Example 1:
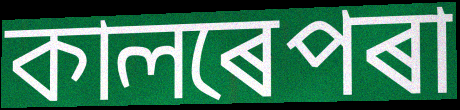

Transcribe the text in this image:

কালৰেপৰা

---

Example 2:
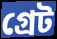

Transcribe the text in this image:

গ্ৰেট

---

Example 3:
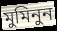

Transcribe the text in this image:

মুমিনুন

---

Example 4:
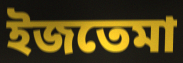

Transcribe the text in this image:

ইজতেমা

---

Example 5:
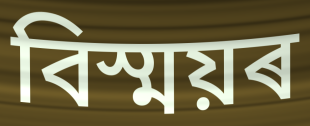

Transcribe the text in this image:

বিস্ময়ৰ